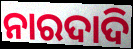
ନାରଦାଦି